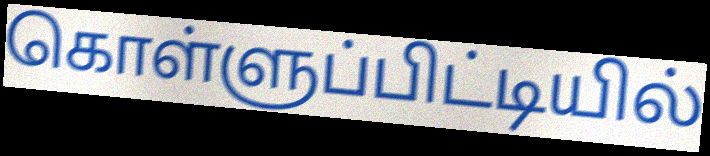
கொள்ளுப்பிட்டியில்